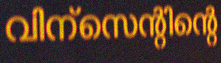
വിന്സെന്റിന്റെ